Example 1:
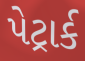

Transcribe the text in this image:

પેટ્રાર્ક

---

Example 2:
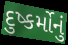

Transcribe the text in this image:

દુષ્કર્મોનું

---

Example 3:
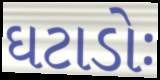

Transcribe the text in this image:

ઘટાડોઃ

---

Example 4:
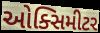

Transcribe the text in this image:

ઓક્સિમીટર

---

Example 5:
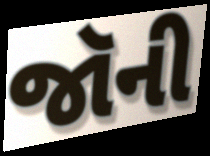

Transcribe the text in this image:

જૉની